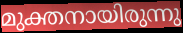
മുക്തനായിരുന്നു